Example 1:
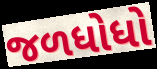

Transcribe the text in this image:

જળધોધો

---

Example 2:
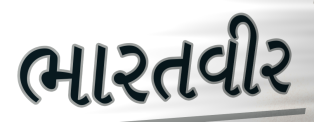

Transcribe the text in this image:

ભારતવીર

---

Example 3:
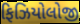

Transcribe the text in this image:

ફિઝિયોલોજી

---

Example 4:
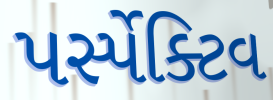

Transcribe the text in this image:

પર્સ્પેક્ટિવ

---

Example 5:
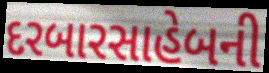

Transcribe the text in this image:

દરબારસાહેબની